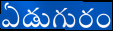
ఏడుగురం